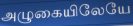
அழுகையிலேயே